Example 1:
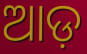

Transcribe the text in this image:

ଆଡ଼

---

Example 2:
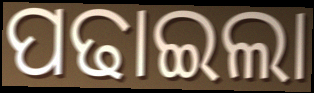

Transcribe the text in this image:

ପଢାଇଲା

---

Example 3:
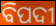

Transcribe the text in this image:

ବିପଦୀ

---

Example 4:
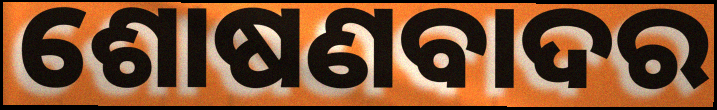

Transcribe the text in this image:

ଶୋଷଣବାଦର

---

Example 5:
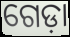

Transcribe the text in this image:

ଗେଡ଼ା